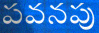
పవనపు